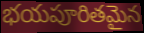
భయపూరితమైన